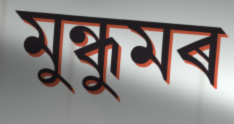
মুন্ধুমৰ